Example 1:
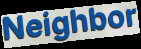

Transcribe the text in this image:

Neighbor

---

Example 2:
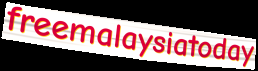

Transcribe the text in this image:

freemalaysiatoday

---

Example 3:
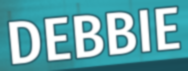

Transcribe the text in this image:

DEBBIE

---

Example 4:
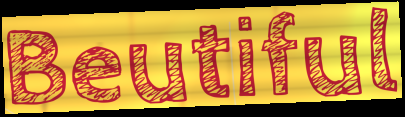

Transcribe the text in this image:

Beutiful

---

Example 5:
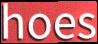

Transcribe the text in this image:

hoes